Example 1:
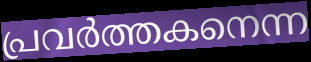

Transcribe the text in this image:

പ്രവർത്തകനെന്ന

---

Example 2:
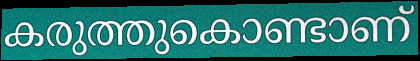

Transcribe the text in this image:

കരുത്തുകൊണ്ടാണ്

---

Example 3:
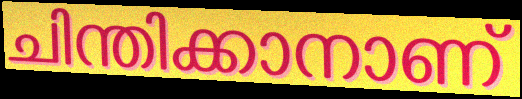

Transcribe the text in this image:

ചിന്തിക്കാനാണ്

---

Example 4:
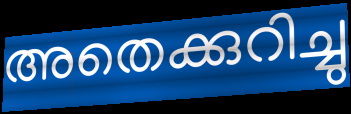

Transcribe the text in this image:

അതെക്കുറിച്ചു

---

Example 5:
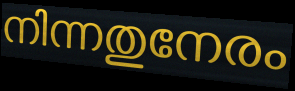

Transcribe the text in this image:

നിന്നതുനേരം